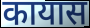
कायास